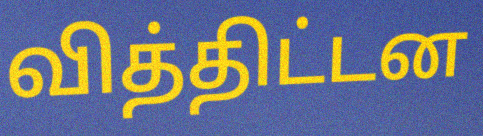
வித்திட்டன